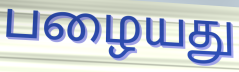
பழையது